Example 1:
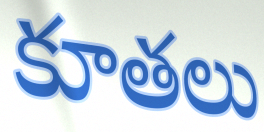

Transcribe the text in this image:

కూతలు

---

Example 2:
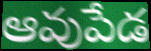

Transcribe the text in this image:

ఆవుపేడ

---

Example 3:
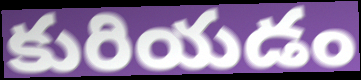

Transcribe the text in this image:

కురియడం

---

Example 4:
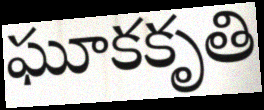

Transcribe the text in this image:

ఘూకకృతి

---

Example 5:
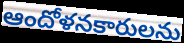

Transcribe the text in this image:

ఆందోళనకారులను